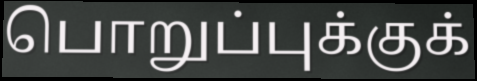
பொறுப்புக்குக்